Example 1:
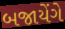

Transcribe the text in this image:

બજાયેંગે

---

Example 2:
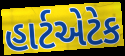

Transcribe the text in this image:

હાર્ટએટેક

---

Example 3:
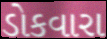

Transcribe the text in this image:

ડોકવારા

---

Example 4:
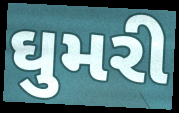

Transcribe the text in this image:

ઘુમરી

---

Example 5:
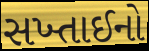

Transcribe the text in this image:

સખ્તાઈનો